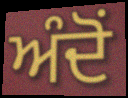
ਅੰਦੋਂ